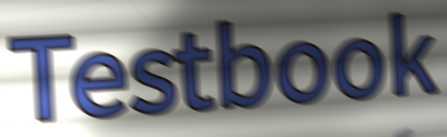
Testbook